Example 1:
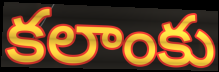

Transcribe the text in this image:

కలాంకు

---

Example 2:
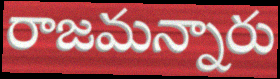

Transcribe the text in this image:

రాజమన్నారు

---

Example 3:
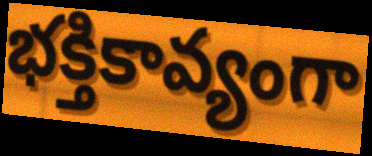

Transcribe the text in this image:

భక్తికావ్యంగా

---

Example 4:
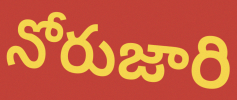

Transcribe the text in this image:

నోరుజారి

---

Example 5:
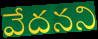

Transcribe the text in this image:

వేదనని